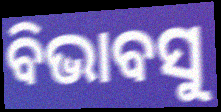
ବିଭାବସୁ